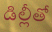
డిల్లీతో